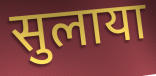
सुलाया